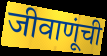
जीवाणूंची